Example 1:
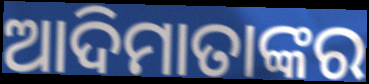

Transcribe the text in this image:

ଆଦିମାତାଙ୍କର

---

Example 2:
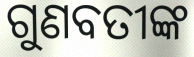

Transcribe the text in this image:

ଗୁଣବତୀଙ୍କ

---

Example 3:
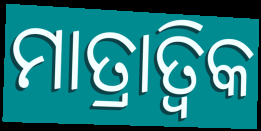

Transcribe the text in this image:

ମାତ୍ରାତ୍ଵିକ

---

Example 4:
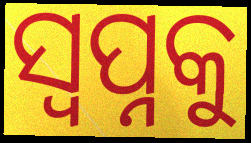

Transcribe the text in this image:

ସ୍ଵପ୍ନକୁ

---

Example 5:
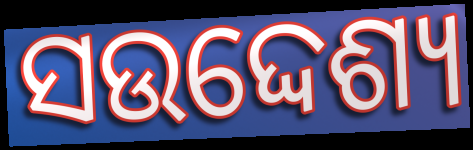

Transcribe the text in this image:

ସଉଦ୍ଦେଶ୍ୟ